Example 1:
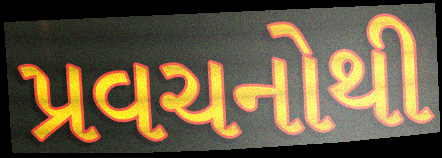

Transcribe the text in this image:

પ્રવચનોથી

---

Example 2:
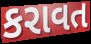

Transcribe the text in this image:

કરાવત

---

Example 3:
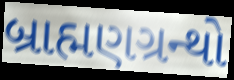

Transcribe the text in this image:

બ્રાહ્મણગ્રન્થો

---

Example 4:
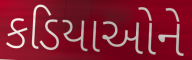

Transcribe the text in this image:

કડિયાઓને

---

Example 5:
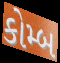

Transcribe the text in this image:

કોમ્બ